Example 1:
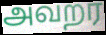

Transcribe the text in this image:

அவறர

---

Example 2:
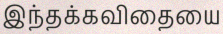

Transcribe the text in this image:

இந்தக்கவிதையை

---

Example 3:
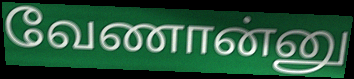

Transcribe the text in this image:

வேணான்னு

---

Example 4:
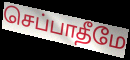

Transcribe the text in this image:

செப்பாதீமே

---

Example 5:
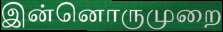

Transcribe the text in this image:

இன்னொருமுறை